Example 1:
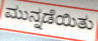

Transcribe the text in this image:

ಮುನ್ನಡೆಯಿತು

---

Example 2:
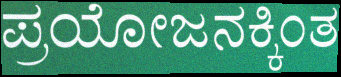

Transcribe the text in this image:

ಪ್ರಯೋಜನಕ್ಕಿಂತ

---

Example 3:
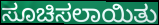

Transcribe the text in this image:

ಸೂಚಿಸಲಾಯಿತು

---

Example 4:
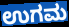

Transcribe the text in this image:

ಉಗಮ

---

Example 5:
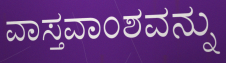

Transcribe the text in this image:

ವಾಸ್ತವಾಂಶವನ್ನು